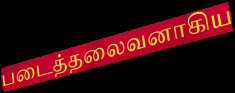
படைத்தலைவனாகிய